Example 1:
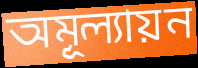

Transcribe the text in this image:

অমূল্যায়ন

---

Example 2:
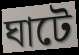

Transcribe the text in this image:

ঘাটে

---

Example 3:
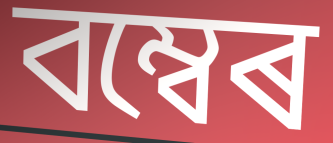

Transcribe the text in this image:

বম্বেৰ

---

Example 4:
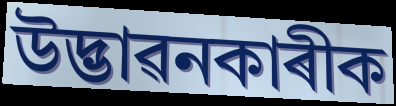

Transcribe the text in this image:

উদ্ভাৱনকাৰীক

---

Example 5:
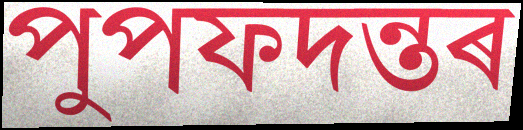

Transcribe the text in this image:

পুপফদন্তৰ